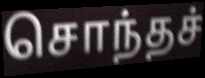
சொந்தச்